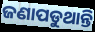
ଜଣାପଡୁଥାନ୍ତି